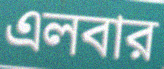
এলবার